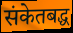
संकेतबद्ध